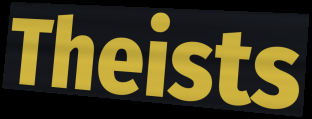
Theists